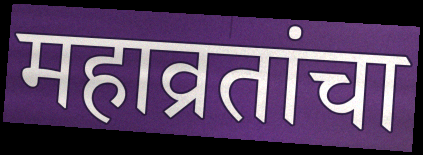
महाव्रतांचा